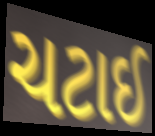
ચટાઈ